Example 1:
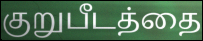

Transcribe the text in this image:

குறுபீடத்தை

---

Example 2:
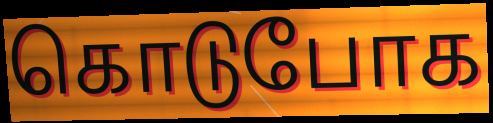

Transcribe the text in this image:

கொடுபோக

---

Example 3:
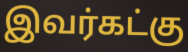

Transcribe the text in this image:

இவர்கட்கு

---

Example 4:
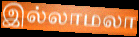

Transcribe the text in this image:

இல்லாமலா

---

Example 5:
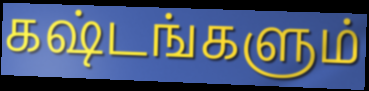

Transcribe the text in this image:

கஷ்டங்களும்